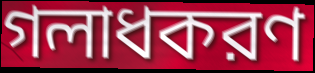
গলাধকরণ